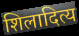
शिलादित्य